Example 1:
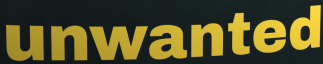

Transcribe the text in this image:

unwanted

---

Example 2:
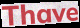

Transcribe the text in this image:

Thave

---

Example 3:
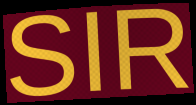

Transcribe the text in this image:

SIR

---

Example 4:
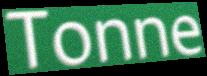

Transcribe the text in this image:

Tonne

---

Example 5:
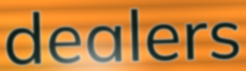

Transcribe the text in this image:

dealers